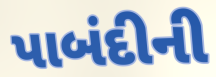
પાબંદીની